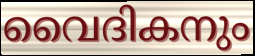
വൈദികനും